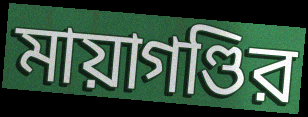
মায়াগণ্ডির